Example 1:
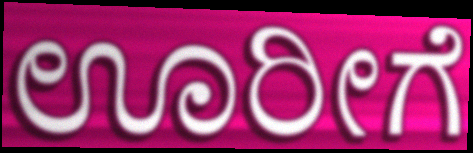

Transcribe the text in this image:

ಊರೀಗೆ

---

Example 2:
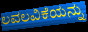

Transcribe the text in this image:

ಲವಲವಿಕೆಯನ್ನು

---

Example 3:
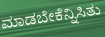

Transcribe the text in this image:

ಮಾಡಬೇಕೆನ್ನಿಸಿತು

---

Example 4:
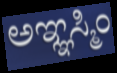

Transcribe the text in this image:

ಅಞ್ಞಸ್ಮಿಂ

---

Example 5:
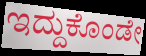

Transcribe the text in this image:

ಇದ್ದುಕೊಂಡೇ